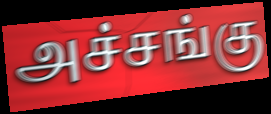
அச்சங்கு